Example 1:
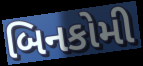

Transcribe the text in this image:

બિનકોમી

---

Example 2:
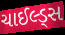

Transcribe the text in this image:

ચાઈલ્ડ્સ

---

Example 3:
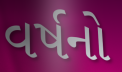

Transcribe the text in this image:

વર્ષનો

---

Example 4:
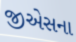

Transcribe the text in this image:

જીએસના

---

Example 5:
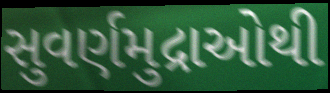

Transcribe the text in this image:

સુવર્ણમુદ્રાઓથી